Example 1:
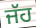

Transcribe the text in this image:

ਜੱਹ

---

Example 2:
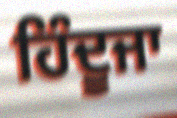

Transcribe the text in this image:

ਹਿੰਦੂਜਾ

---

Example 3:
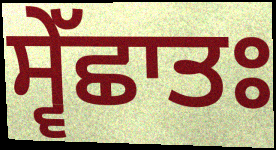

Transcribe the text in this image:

ਸ੍ਵੇੱਛਾਤਃ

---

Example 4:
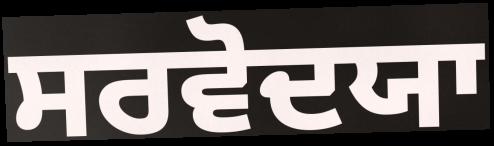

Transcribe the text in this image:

ਸਰਵੋਦਯਾ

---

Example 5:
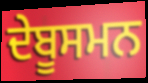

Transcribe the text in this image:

ਦੇਬੂਸਮਨ